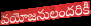
వయోజనులందరికీ